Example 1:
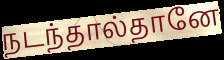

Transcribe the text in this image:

நடந்தால்தானே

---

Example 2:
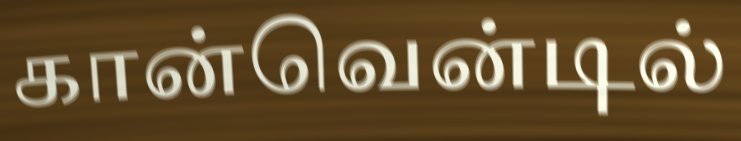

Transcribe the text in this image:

கான்வென்டில்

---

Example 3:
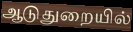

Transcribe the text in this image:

ஆடுதுறையில்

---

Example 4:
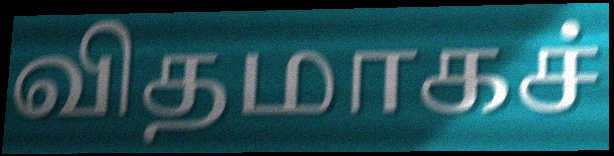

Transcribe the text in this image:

விதமாகச்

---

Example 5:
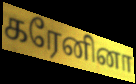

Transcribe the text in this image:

கரேனினா